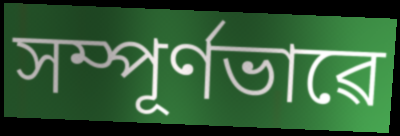
সম্পূৰ্ণভাৱে